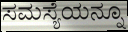
ಸಮಸ್ಯೆಯನ್ನೂ